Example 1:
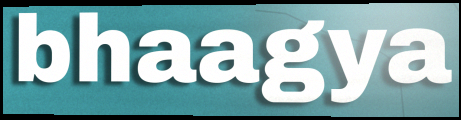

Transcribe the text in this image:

bhaagya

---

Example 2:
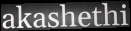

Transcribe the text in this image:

akashethi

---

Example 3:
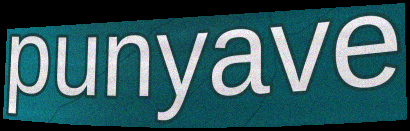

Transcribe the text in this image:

punyave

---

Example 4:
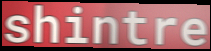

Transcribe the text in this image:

shintre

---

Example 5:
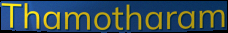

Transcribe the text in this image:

Thamotharam